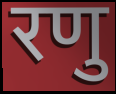
रणु